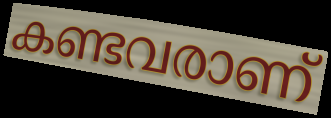
കണ്ടവരാണ്